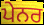
ਪੇਨਰ